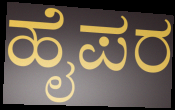
ಹೈಪರ